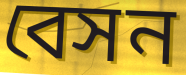
বেসন